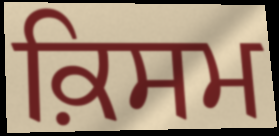
ਕ਼ਿਸਮ